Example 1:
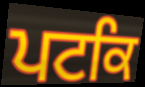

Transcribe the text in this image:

ਪਟਕਿ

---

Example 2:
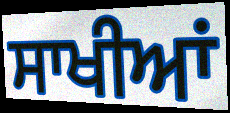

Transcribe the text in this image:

ਸਾਖੀਆਂ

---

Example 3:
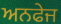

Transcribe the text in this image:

ਅਨਫੇਜ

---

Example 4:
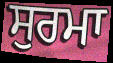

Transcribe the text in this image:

ਸੁਰਮਾ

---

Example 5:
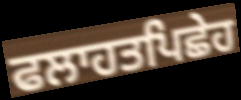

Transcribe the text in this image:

ਫਲਾਹਤਪਿਛੇਹ